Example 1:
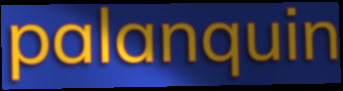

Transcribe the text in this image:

palanquin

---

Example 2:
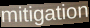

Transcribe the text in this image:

mitigation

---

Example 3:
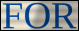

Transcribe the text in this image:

FOR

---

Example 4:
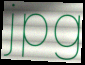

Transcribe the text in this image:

jpg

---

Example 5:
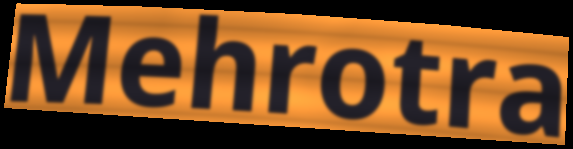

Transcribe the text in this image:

Mehrotra